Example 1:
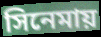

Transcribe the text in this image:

সিনেমায়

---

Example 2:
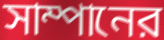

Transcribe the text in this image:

সাম্পানের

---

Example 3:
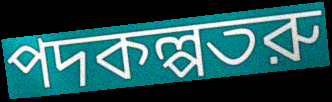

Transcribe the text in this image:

পদকল্পতরু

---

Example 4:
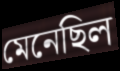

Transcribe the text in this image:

মেনেছিল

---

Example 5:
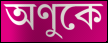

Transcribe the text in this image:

অণুকে